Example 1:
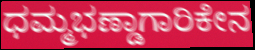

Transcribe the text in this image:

ಧಮ್ಮಭಣ್ಡಾಗಾರಿಕೇನ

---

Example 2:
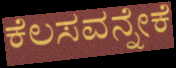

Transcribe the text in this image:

ಕೆಲಸವನ್ನೇಕೆ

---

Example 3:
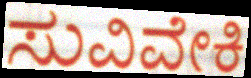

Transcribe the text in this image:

ಸುವಿವೇಕಿ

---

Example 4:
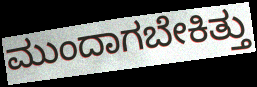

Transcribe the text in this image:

ಮುಂದಾಗಬೇಕಿತ್ತು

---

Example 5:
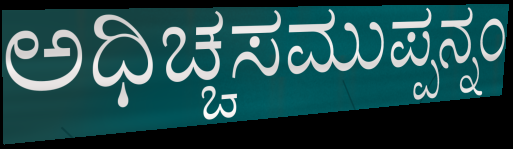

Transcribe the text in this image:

ಅಧಿಚ್ಚಸಮುಪ್ಪನ್ನಂ